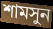
শামসুন